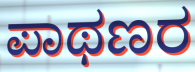
ಪಾಥಣರ